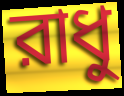
রাধু